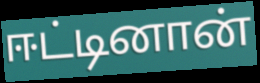
ஈட்டினான்